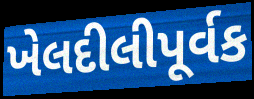
ખેલદીલીપૂર્વક